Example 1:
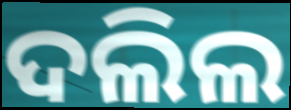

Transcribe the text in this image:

ଦଲିଲ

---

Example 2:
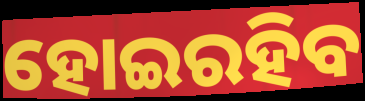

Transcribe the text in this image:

ହୋଇରହିବ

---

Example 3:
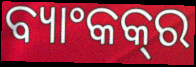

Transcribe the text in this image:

ବ୍ୟାଂକକ୍‍ର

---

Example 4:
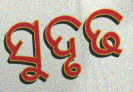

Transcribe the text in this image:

ସୁଦୃଢ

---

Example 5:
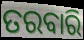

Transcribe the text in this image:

ତରବାରି